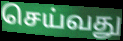
செய்வது